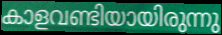
കാളവണ്ടിയായിരുന്നു